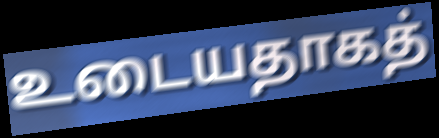
உடையதாகத்